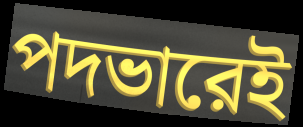
পদভারেই